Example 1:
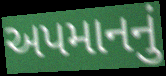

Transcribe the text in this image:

અપમાનનું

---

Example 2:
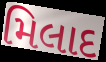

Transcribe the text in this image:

મિલાદ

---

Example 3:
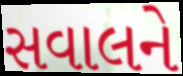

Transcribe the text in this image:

સવાલને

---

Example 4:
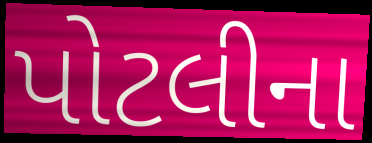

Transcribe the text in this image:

પોટલીના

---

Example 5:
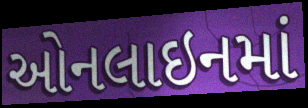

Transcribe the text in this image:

ઓનલાઇનમાં